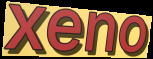
xeno